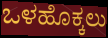
ಒಳಹೊಕ್ಕಲು